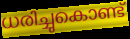
ധരിച്ചുകൊണ്ട്